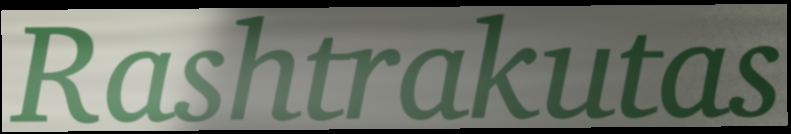
Rashtrakutas